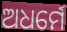
ଅଧର୍ମେ